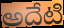
అదేటి